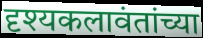
दृश्यकलावंतांच्या